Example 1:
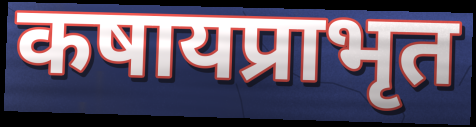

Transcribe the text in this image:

कषायप्राभृत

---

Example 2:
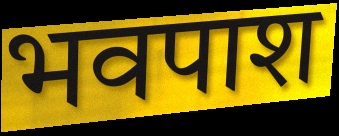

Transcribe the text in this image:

भवपाश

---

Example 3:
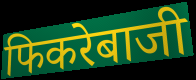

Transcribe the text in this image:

फिकरेबाजी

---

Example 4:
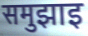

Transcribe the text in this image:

समुझाइ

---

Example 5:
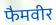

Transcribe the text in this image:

फैमवीर